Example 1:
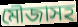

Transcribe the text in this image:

মৌজাসহ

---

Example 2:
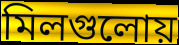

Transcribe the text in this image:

মিলগুলোয়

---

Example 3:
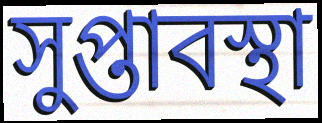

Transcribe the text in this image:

সুপ্তাবস্থা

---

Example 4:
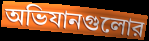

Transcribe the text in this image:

অভিযানগুলোর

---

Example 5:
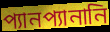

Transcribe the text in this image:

প্যানপ্যানানি